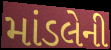
માંડલેની